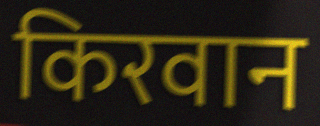
किरवान